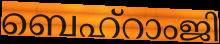
ബെഹ്റാംജി